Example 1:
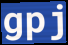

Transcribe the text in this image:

gpj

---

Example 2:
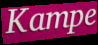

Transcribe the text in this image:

Kampe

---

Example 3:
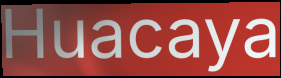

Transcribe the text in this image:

Huacaya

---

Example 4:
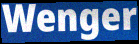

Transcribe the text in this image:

Wenger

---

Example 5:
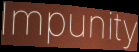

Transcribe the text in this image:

Impunity